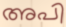
അപി